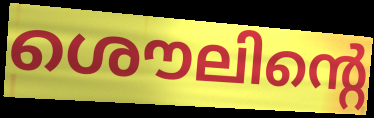
ശൌലിന്റെ